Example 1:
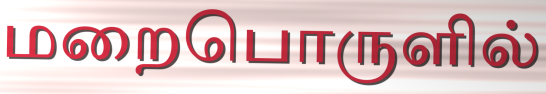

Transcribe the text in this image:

மறைபொருளில்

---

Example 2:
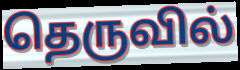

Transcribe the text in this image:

தெருவில்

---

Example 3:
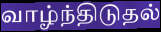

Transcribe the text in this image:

வாழ்ந்திடுதல்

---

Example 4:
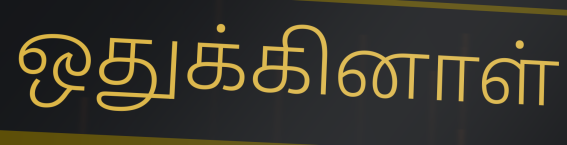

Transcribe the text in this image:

ஒதுக்கினாள்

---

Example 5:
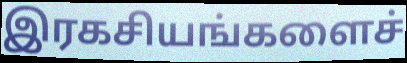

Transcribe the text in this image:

இரகசியங்களைச்